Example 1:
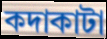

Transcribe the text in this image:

কদাকাটা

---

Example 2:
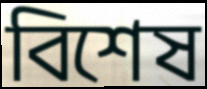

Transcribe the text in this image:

বিশেষ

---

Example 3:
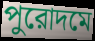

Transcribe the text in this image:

পুরোদমে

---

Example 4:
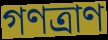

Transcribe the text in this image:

গণত্রাণ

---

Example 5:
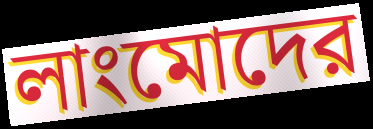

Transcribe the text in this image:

লাংমোদের